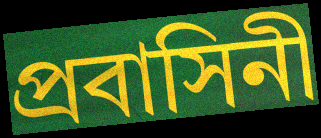
প্রবাসিনী